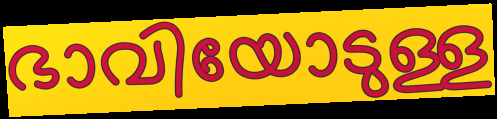
ഭാവിയോടുള്ള